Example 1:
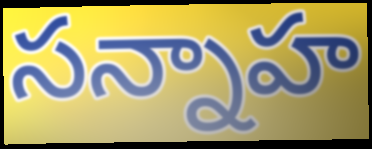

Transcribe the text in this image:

సన్నాహ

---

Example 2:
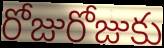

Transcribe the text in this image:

రోజురోజుకు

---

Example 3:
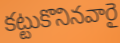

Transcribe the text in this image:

కట్టుకొనినవారై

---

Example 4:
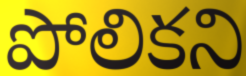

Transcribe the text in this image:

పోలికని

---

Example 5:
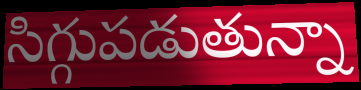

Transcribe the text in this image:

సిగ్గుపడుతున్నా